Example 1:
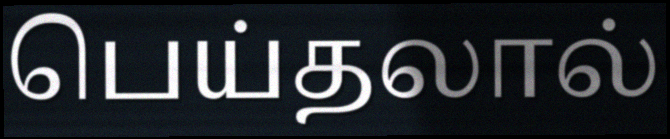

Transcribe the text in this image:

பெய்தலால்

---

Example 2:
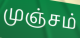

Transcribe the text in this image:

முஞ்சம்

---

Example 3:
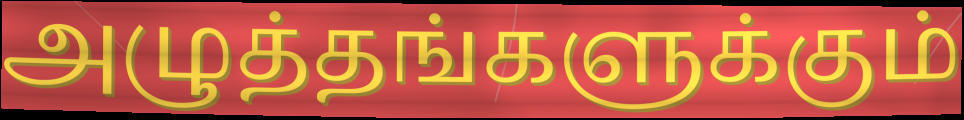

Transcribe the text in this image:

அழுத்தங்களுக்கும்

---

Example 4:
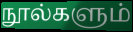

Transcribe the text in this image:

நூல்களும்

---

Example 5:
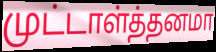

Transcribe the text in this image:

முட்டாள்த்தனமா